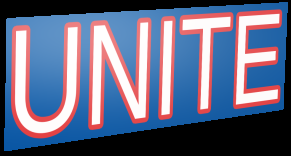
UNITE